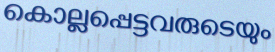
കൊല്ലപ്പെട്ടവരുടെയും